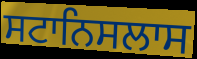
ਸਟਾਨਿਸਲਾਸ